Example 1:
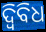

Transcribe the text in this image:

ଦ୍ୱିବିଧ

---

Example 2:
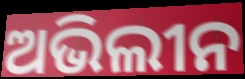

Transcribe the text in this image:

ଅଭିଲୀନ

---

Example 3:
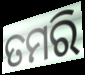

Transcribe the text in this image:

ତମରି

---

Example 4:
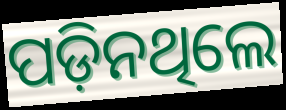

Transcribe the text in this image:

ପଡ଼ିନଥିଲେ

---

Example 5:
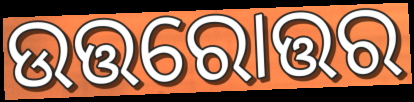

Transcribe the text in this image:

ଉତ୍ତରୋତ୍ତର